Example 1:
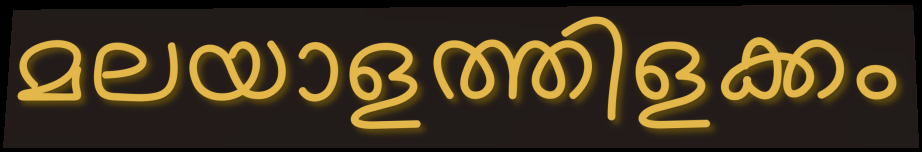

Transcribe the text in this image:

മലയാളത്തിളക്കം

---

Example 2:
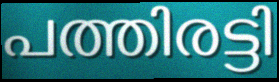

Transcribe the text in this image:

പത്തിരട്ടി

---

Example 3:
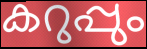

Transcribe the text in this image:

കറുപ്പും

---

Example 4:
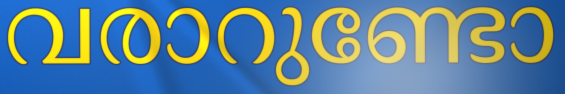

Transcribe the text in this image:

വരാറുണ്ടോ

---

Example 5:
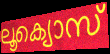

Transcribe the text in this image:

ലൂക്യൊസ്